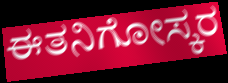
ಈತನಿಗೋಸ್ಕರ